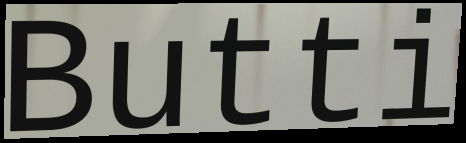
Butti